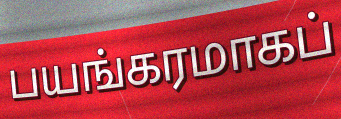
பயங்கரமாகப்